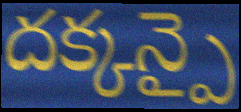
దక్కన్పై